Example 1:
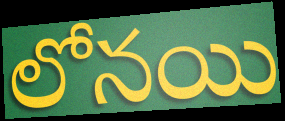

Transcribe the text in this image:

లోనయి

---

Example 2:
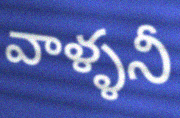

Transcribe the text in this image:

వాళ్ళనీ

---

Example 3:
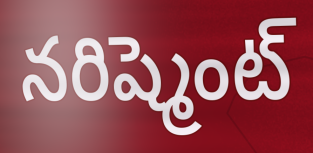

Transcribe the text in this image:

నరిష్మెంట్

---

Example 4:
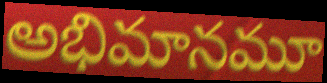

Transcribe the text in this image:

అభిమానమూ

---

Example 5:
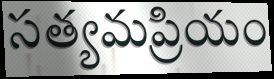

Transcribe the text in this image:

సత్యమప్రియం